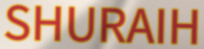
SHURAIH